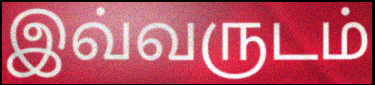
இவ்வருடம்